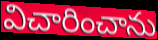
విచారించాను